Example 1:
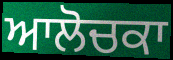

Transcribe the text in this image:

ਆਲੋਚਕਾ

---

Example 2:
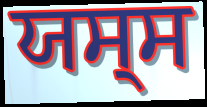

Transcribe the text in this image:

ਯਸ੍ਸ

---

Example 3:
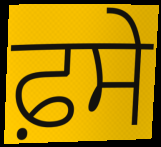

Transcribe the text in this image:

ਫ਼ਸੇ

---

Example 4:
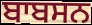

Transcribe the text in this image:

ਬਾਬਸਨ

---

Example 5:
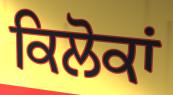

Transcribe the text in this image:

ਕਿਲੋਕਾਂ